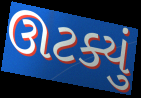
ઊટક્યું